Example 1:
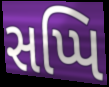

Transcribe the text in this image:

સપ્પિ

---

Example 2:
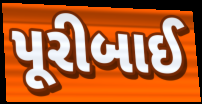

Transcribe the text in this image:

પૂરીબાઈ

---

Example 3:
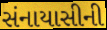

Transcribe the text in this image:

સંનાયાસીની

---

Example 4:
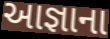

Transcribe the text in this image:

આજ્ઞાના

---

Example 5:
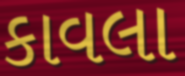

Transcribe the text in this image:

કાવલા